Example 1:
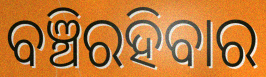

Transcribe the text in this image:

ବଞ୍ଚିରହିବାର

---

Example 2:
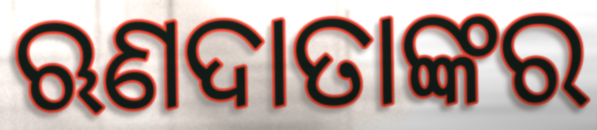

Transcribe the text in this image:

ଋଣଦାତାଙ୍କର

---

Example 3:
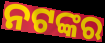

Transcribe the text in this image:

ନଟଙ୍କର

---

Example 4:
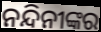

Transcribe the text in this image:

ନନ୍ଦିନୀଙ୍କର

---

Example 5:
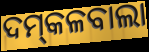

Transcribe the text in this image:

ଦମ୍‍କଳବାଲା